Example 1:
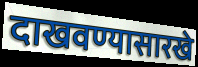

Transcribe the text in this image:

दाखवण्यासारखे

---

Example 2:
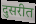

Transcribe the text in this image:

दुसरीत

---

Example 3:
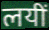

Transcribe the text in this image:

लयीं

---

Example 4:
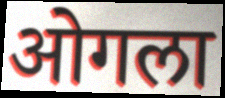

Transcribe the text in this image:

ओगला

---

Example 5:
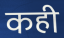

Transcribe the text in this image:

कही